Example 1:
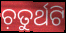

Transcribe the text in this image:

ଚ଼ତୁର୍ଥଟି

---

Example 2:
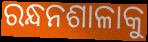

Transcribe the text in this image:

ରନ୍ଧନଶାଳାକୁ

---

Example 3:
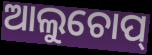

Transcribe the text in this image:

ଆଲୁଚୋପ୍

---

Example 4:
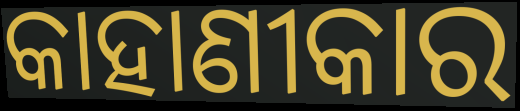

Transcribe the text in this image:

କାହାଣୀକାର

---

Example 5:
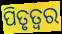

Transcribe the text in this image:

ପିତୃତ୍ୱର